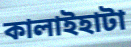
কালাইহাটা